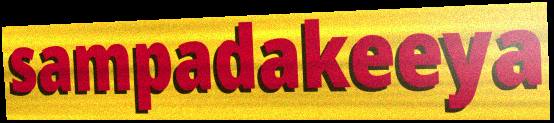
sampadakeeya